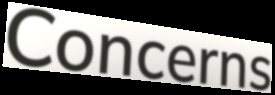
Concerns